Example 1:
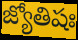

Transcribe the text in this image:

జ్యోతిషః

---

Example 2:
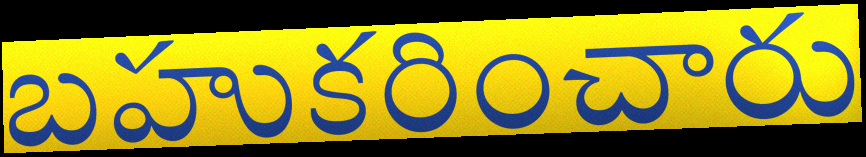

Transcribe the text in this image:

బహుకరించారు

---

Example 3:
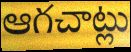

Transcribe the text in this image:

ఆగచాట్లు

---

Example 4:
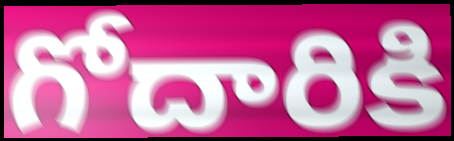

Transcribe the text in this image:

గోదారికి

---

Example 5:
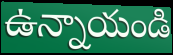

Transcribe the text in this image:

ఉన్నాయండి